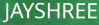
JAYSHREE